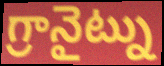
గ్రానైట్ను